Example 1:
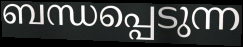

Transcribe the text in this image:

ബന്ധപ്പെടുന്ന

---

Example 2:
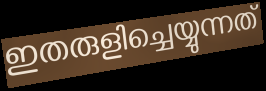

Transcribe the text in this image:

ഇതരുളിച്ചെയ്യുന്നത്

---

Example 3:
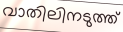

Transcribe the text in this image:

വാതിലിനടുത്ത്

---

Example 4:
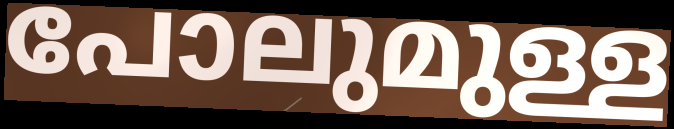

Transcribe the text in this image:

പോലുമുള്ള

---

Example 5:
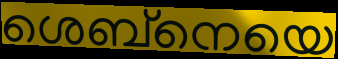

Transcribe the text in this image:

ശെബ്നെയെ